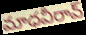
మాధవీరావ్